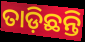
ତାଡ଼ିଛନ୍ତି